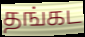
தங்கட